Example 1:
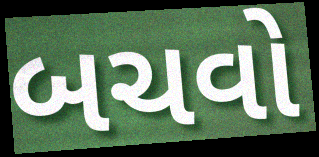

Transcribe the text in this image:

બચવો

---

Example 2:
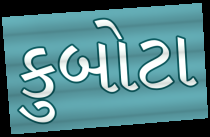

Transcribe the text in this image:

કુબોટા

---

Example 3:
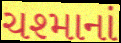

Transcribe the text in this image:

ચશ્માનાં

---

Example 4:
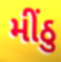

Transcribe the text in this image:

મીંઠુ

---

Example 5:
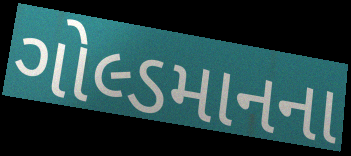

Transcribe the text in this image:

ગોલ્ડમાનના